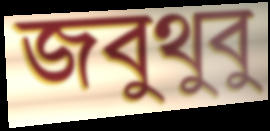
জবুথুবু